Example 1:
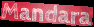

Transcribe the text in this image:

Mandara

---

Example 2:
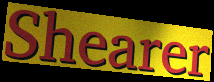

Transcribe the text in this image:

Shearer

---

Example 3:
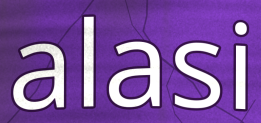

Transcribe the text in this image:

alasi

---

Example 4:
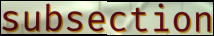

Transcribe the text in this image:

subsection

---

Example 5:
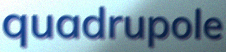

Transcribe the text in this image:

quadrupole